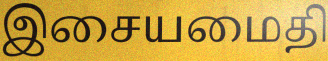
இசையமைதி